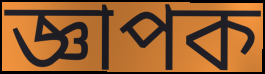
জ্ঞাপক